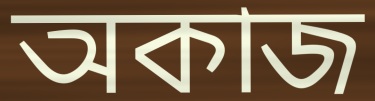
অকাজ